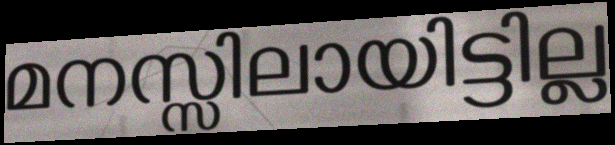
മനസ്സിലായിട്ടില്ല